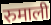
रुमाली